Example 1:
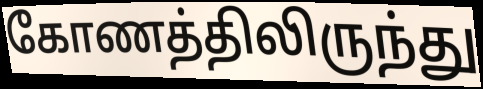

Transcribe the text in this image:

கோணத்திலிருந்து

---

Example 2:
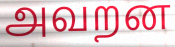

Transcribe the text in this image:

அவறன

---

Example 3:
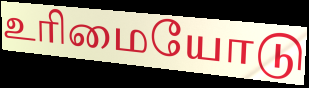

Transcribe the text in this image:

உரிமையோடு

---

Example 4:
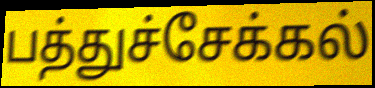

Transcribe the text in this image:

பத்துச்சேக்கல்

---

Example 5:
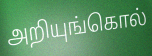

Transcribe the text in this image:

அறியுங்கொல்